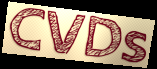
CVDs